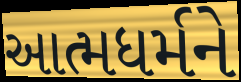
આત્મધર્મને